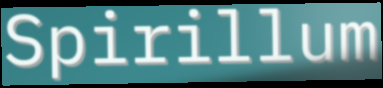
Spirillum